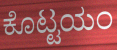
ಕೊಟ್ಟಯಂ